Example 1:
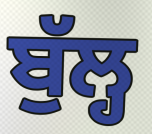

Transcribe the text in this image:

ਬੁੱਲ੍ਹ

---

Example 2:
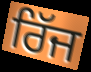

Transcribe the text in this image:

ਰਿੱਜ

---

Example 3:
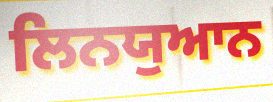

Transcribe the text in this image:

ਲਿਨਯੁਆਨ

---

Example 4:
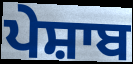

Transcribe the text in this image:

ਪੇਸ਼ਾਬ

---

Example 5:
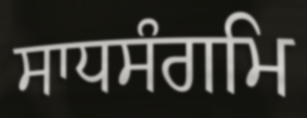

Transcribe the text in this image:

ਸਾਧਸੰਗਮਿ